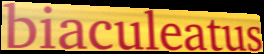
biaculeatus